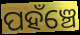
ପହଁଞ୍ଚେ